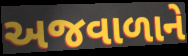
અજવાળાને